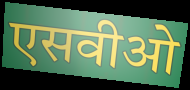
एसवीओ